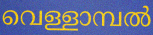
വെള്ളാമ്പൽ